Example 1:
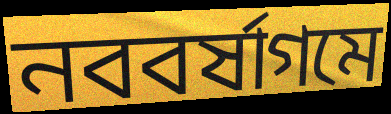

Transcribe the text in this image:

নববর্ষাগমে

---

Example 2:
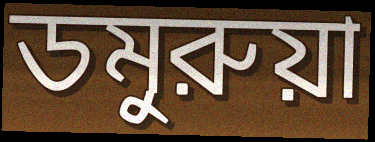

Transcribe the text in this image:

ডমুরুয়া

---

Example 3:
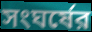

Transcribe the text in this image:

সংঘর্ষের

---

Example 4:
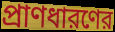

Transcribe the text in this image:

প্রাণধারণের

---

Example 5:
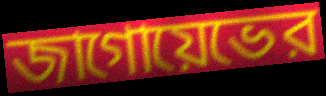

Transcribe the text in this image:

জাগোয়েভের